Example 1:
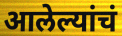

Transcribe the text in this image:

आलेल्यांचं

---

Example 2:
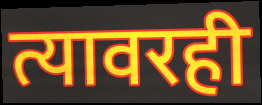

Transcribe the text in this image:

त्यावरही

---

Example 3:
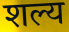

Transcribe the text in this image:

शल्‍य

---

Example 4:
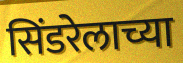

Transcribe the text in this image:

सिंडरेलाच्या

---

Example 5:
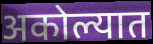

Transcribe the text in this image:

अकोल्यात